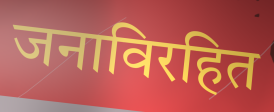
जनाविरहित